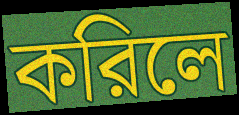
করিলে